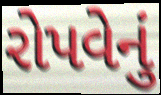
રોપવેનું